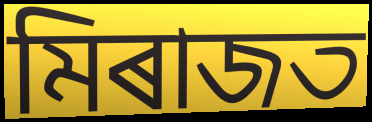
মিৰাজত